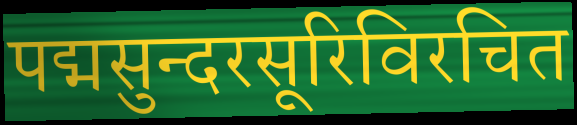
पद्मसुन्दरसूरिविरचित